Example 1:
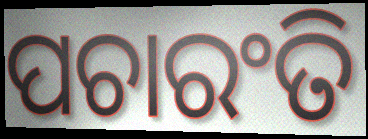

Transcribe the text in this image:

ପଚାରଂତି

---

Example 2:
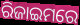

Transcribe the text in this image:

ରିଜାଇମରେ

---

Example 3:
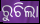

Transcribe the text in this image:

ରୁଚିଲା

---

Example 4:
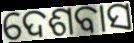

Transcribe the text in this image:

ଦେଶବାସ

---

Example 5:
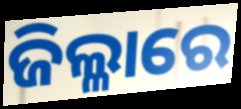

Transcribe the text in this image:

ଜିଲ୍ଳାରେ